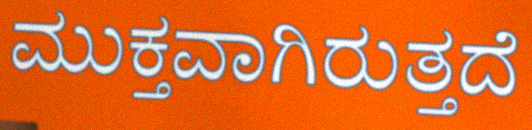
ಮುಕ್ತವಾಗಿರುತ್ತದೆ